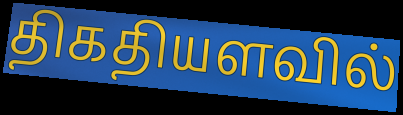
திகதியளவில்